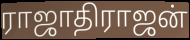
ராஜாதிராஜன்